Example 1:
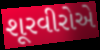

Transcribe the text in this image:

શૂરવીરોએ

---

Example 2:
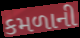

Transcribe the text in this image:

કમળાની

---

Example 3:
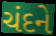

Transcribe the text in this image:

ચંદને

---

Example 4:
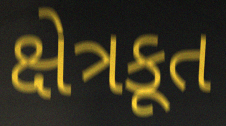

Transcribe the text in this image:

ક્ષેત્રકૂત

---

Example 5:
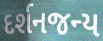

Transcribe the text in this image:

દર્શનજન્ય